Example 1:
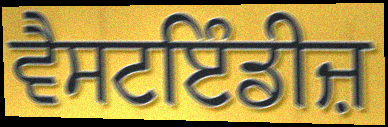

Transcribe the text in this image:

ਵੈਸਟਇੰਡੀਜ਼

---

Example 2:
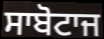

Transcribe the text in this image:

ਸਾਬੋਟਾਜ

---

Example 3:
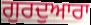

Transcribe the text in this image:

ਗੁਰਦੁਆਰਾ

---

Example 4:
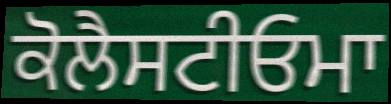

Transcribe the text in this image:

ਕੋਲੈਸਟੀਓਮਾ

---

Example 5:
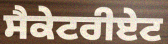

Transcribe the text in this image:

ਸੈਕੇਟਰੀਏਟ